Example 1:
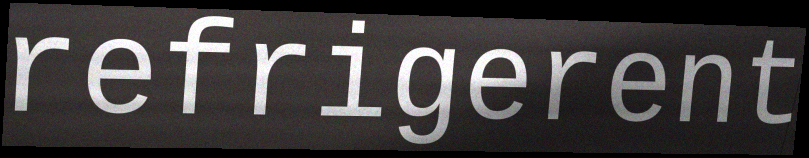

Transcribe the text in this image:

refrigerent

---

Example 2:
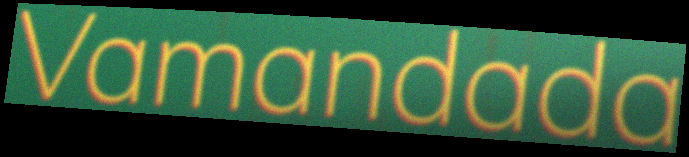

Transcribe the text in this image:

Vamandada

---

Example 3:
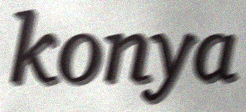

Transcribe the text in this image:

konya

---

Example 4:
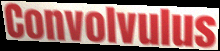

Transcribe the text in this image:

Convolvulus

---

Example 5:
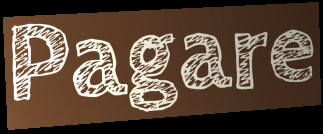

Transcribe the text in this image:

Pagare